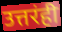
उत्तरंही